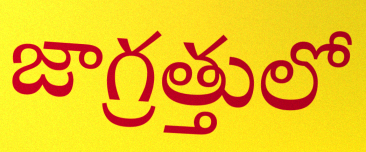
జాగ్రత్తులో